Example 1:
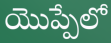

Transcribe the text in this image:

యొప్పేలో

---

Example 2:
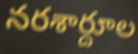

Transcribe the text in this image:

నరశార్దూల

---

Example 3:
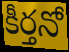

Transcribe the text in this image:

కీర్తనో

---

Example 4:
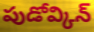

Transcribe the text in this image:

పుడోవ్కిన్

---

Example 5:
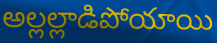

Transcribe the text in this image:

అల్లల్లాడిపోయాయి